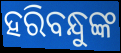
ହରିବନ୍ଧୁଙ୍କ